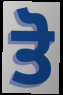
ਤੋ